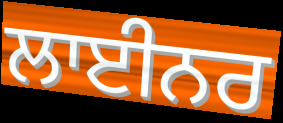
ਲਾਈਨਰ